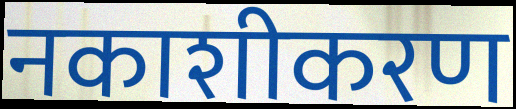
नकाशीकरण